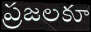
ప్రజలకూ